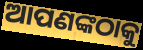
ଆପଣଙ୍କଠାକୁ